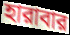
হারাবার